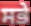
ਸਭੇ